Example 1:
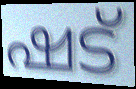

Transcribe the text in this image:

ഷട്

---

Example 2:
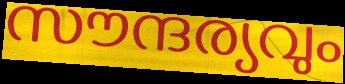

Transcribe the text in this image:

സൗന്ദര്യവും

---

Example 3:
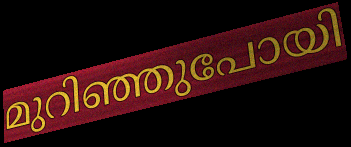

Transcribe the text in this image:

മുറിഞ്ഞുപോയി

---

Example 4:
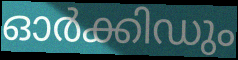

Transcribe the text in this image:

ഓർക്കിഡും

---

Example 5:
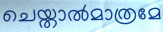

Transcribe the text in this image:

ചെയ്താൽമാത്രമേ